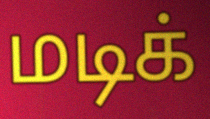
மடிக்